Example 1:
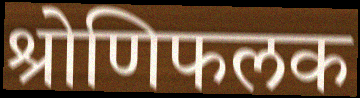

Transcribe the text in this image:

श्रोणिफलक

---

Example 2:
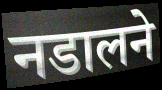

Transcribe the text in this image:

नडालने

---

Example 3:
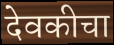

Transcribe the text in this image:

देवकीचा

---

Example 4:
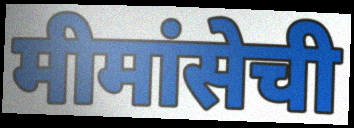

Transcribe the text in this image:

मीमांसेची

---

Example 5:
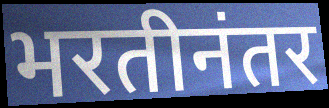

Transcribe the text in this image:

भरतीनंतर